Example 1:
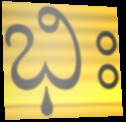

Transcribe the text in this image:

ಭಿಃ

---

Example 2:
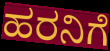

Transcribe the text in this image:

ಹರನಿಗೆ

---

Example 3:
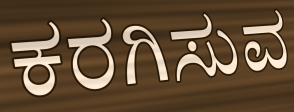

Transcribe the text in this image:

ಕರಗಿಸುವ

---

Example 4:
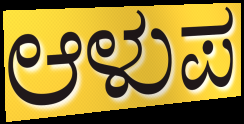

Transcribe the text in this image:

ಆಳುಪ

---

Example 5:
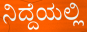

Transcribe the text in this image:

ನಿದ್ದೆಯಲ್ಲಿ